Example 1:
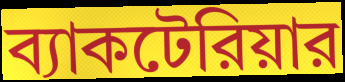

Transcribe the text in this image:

ব্যাকটেরিয়ার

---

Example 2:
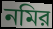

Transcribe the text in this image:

নমির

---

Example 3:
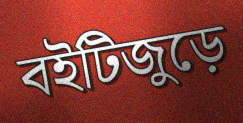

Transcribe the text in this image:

বইটিজুড়ে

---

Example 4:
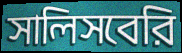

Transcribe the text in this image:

সালিসবেরি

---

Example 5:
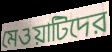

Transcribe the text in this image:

মেওয়াটিদের